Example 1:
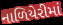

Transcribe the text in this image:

નાળિયેરીમાં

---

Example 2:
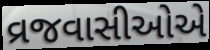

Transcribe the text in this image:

વ્રજવાસીઓએ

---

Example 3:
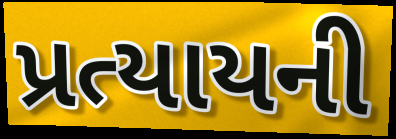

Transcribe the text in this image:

પ્રત્યાયની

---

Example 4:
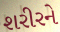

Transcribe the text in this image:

શરીરને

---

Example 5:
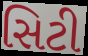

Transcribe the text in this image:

સિટી